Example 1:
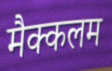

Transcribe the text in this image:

मैक्कलम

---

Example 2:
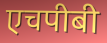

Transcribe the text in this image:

एचपीबी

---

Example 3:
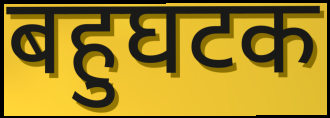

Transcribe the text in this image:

बहुघटक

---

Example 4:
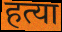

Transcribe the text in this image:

हत्‍या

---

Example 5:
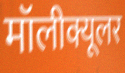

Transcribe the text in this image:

मॉलीक्यूलर